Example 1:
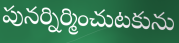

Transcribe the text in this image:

పునర్నిర్మించుటకును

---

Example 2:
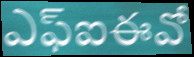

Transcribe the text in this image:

ఎఫ్ఐఈవో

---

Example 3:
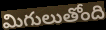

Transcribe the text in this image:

మిగులుతోంది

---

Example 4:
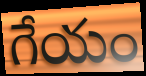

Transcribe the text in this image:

గేయం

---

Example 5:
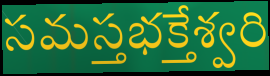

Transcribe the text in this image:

సమస్తభక్తేశ్వరి